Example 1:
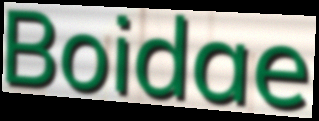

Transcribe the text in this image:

Boidae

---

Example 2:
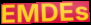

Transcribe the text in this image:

EMDEs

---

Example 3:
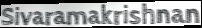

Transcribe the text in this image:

Sivaramakrishnan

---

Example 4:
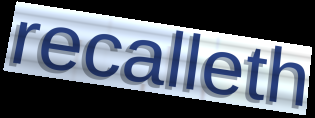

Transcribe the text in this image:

recalleth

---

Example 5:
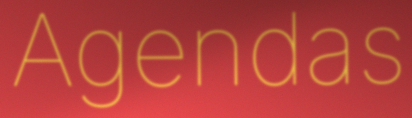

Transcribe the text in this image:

Agendas